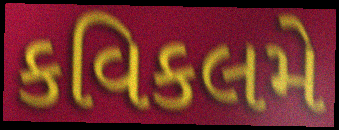
કવિકલમે